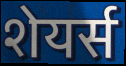
शेयर्स